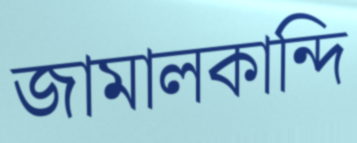
জামালকান্দি